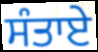
ਸੰਤਾਏ